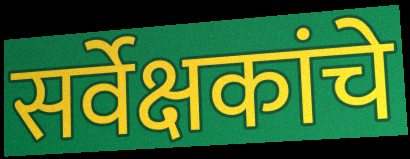
सर्वेक्षकांचे